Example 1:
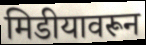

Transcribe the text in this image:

मिडीयावरून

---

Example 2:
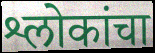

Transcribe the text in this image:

श्लोकांचा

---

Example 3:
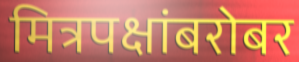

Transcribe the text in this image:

मित्रपक्षांबरोबर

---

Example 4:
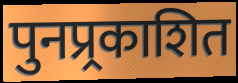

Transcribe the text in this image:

पुनप्र्रकाशित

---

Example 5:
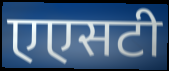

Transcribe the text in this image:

एएसटी